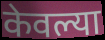
केवल्या